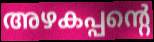
അഴകപ്പന്റെ